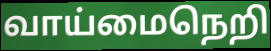
வாய்மைநெறி